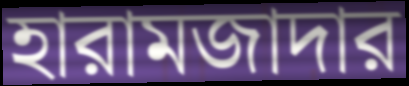
হারামজাদার